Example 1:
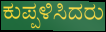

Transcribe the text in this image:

ಕುಪ್ಪಳಿಸಿದರು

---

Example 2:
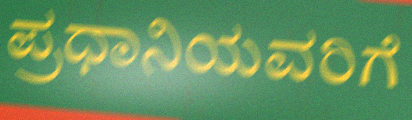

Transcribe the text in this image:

ಪ್ರಧಾನಿಯವರಿಗೆ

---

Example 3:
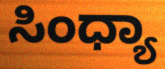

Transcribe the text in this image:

ಸಿಂಧ್ಯಾ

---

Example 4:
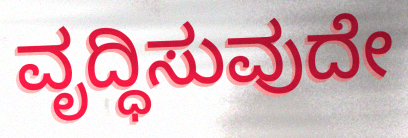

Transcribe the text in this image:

ವೃದ್ಧಿಸುವುದೇ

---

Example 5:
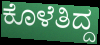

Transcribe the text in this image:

ಕೊಳೆತಿದ್ದ